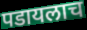
पडायलाच